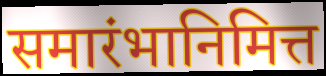
समारंभानिमित्त